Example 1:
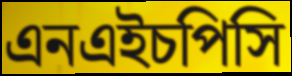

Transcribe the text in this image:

এনএইচপিসি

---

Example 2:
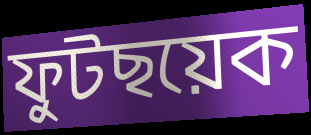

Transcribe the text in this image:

ফুটছয়েক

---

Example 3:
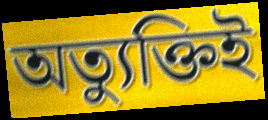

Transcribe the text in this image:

অত্যুক্তিই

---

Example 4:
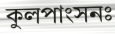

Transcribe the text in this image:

কুলপাংসনঃ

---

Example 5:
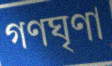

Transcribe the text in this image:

গণঘৃণা